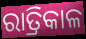
ରାତ୍ରିକାଳ